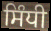
ਸਿੰਧੀ